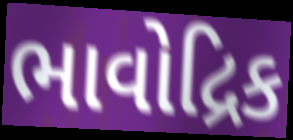
ભાવોદ્રિક